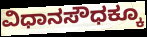
ವಿಧಾನಸೌಧಕ್ಕೂ